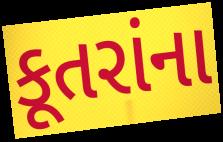
કૂતરાંના